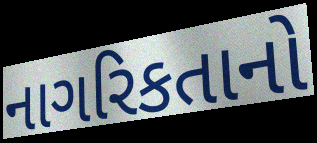
નાગરિકતાનો